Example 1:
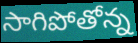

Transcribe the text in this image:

సాగిపోతోన్న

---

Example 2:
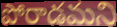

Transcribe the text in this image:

పోరాడమని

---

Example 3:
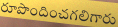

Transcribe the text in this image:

రూపొందించగలిగారు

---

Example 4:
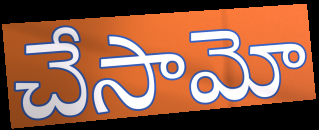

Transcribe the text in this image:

చేసామో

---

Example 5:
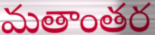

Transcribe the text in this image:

మతాంతర